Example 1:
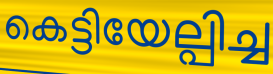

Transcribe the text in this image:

കെട്ടിയേല്പിച്ച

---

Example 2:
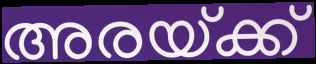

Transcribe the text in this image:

അരയ്‌ക്ക്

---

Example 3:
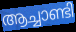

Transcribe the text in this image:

ആച്ചാണ്ടി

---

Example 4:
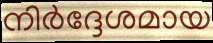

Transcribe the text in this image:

നിർദ്ദേശമായ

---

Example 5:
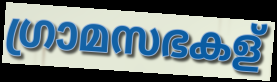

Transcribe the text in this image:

ഗ്രാമസഭകള്